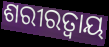
ଶରୀରତ୍ୱାୟ